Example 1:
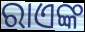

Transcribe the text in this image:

ରାଏଙ୍କ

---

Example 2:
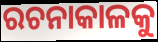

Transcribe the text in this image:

ରଚନାକାଳକୁ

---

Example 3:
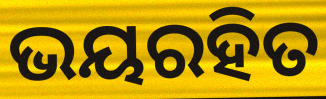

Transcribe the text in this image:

ଭୟରହିତ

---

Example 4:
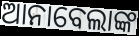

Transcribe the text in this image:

ଆନାବେଲାଙ୍କ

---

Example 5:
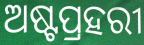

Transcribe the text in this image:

ଅଷ୍ଟପ୍ରହରୀ